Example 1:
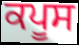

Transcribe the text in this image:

ਕਪੂਸ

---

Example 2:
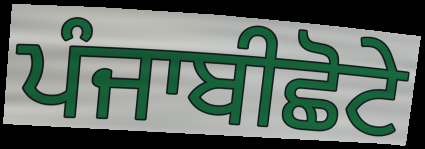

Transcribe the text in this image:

ਪੰਜਾਬੀਛੋਟੇ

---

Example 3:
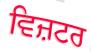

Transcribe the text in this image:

ਵਿਜ਼ਟਰ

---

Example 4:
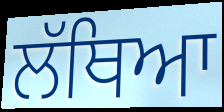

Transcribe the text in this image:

ਲੱਥਿਆ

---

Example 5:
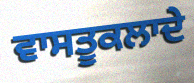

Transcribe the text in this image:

ਵਾਸਤੂਕਲਾਦੇ